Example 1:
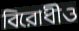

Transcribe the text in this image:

বিরোধীও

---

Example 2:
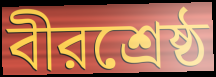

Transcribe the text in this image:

বীরশ্রেষ্ঠ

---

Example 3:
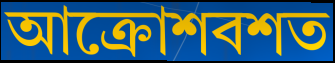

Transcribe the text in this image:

আক্রোশবশত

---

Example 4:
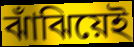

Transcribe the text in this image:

ঝাঁঝিয়েই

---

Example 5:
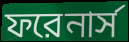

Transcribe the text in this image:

ফরেনার্স